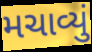
મચાવ્યું